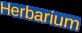
Herbarium